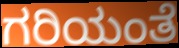
ಗರಿಯಂತೆ